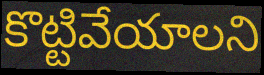
కొట్టివేయాలని